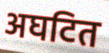
अघटित